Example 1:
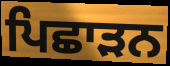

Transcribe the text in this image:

ਪਿਛਾੜਨ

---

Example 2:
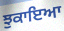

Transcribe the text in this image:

ਝੁਕਾਇਆ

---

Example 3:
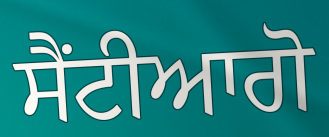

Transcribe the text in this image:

ਸੈਂਟੀਆਗੋ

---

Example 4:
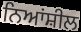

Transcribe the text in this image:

ਨਿਆਂਸ਼ੀਲ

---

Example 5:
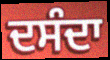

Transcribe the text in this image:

ਦਸੰਦਾ